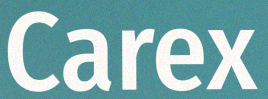
Carex